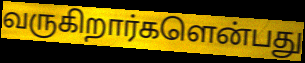
வருகிறார்களென்பது